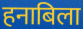
हनाबिला